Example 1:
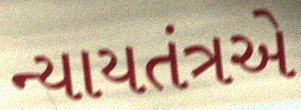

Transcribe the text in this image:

ન્યાયતંત્રએ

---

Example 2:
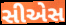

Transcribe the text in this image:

સીએસ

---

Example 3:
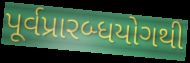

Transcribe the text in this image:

પૂર્વપ્રારબ્ધયોગથી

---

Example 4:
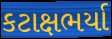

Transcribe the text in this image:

કટાક્ષભર્યા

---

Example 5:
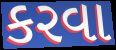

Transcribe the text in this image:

કરવા